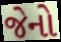
જેનો